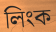
লিংক